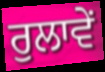
ਰੁਲਾਵੇਂ